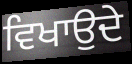
ਵਿਖਾਉਦੇ